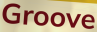
Groove